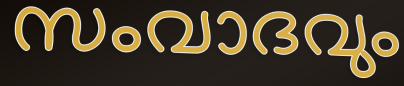
സംവാദവും